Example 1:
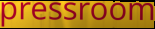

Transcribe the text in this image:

pressroom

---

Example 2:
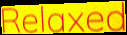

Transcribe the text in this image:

Relaxed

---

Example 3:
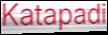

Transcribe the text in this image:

Katapadi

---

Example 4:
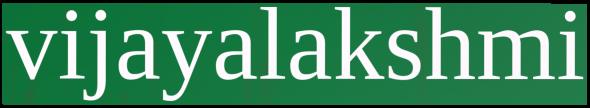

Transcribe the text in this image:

vijayalakshmi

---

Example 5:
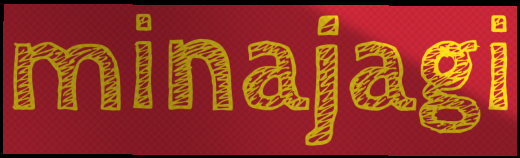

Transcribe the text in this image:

minajagi